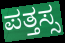
ಪತ್ತಸ್ಸ